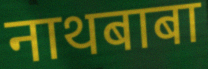
नाथबाबा